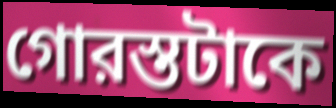
গোরস্তটাকে